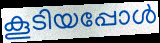
കൂടിയപ്പോൾ